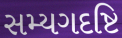
સમ્યગદષ્ટિ